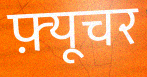
फ़्यूचर